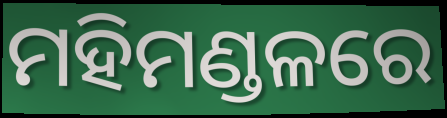
ମହିମଣ୍ଡଳରେ